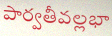
పార్వతీవల్లభా